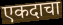
एकदाचा